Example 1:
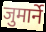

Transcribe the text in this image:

जुमार्ने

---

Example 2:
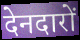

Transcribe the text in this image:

देनदारों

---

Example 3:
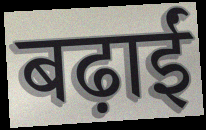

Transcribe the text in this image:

बढ़ाईं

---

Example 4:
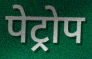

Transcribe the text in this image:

पेट्रोप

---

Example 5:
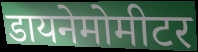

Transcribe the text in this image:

डायनेमोमीटर